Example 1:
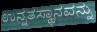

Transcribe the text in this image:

ಉನ್ನತಸ್ಥಾನವನ್ನು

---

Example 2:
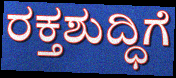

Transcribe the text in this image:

ರಕ್ತಶುದ್ಧಿಗೆ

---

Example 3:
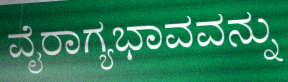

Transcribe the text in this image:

ವೈರಾಗ್ಯಭಾವವನ್ನು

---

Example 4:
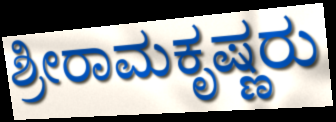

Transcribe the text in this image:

ಶ್ರೀರಾಮಕೃಷ್ಣರು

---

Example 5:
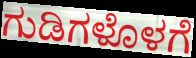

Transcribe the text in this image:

ಗುಡಿಗಳೊಳಗೆ